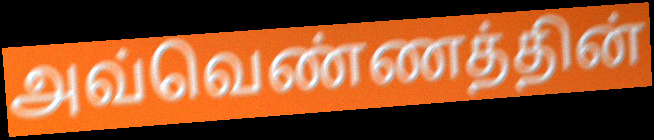
அவ்வெண்ணத்தின்